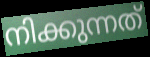
നിക്കുന്നത്